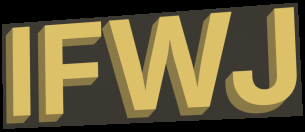
IFWJ